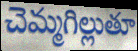
చెమ్మగిల్లుతూ